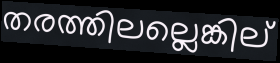
തരത്തിലല്ലെങ്കില്